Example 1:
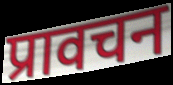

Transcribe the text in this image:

प्रावचन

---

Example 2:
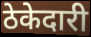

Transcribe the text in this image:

ठेकेदारी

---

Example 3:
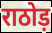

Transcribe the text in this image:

राठोड़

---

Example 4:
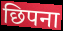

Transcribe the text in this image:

छिपना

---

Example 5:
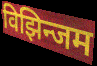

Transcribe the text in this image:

विझिन्जम